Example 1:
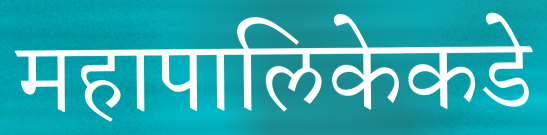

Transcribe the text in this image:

महापालिकेकडे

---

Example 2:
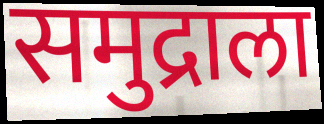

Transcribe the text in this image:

समुद्राला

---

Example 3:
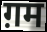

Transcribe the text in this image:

ग़म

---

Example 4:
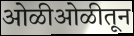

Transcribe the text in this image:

ओळीओळीतून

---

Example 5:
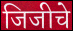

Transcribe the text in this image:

जिजीचे